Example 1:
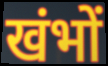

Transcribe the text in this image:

खंभों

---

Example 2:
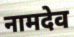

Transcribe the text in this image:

नामदेव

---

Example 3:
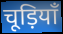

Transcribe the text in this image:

चूड़ियाँ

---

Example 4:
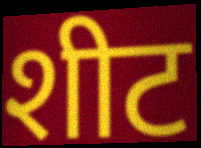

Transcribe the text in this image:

शीट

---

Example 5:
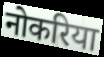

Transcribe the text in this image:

नोकरिया